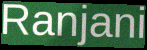
Ranjani